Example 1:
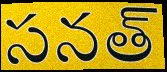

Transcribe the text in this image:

సనత్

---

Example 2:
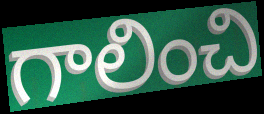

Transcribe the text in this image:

గాలించి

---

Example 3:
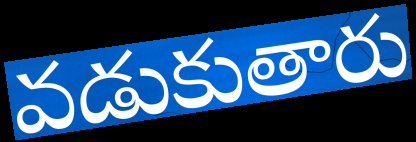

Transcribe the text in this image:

వడుకుతారు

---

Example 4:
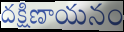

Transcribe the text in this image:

దక్షిణాయనం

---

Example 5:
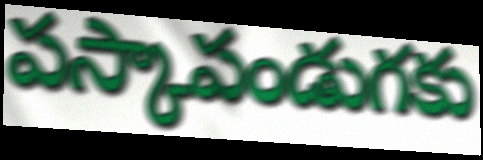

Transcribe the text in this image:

పస్కాపండుగకు